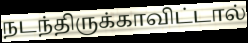
நடந்திருக்காவிட்டால்